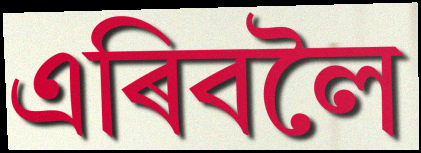
এৰিবলৈ